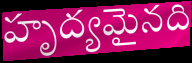
హృద్యమైనది